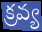
క్రవ్య